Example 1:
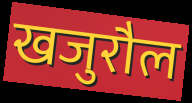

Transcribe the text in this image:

खजुरौल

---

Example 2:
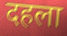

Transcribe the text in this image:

दहला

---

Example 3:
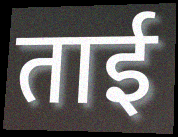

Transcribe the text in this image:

ताई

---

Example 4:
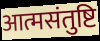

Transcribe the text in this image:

आत्मसंतुष्टि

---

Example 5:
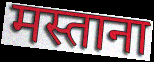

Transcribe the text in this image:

मस्ताना